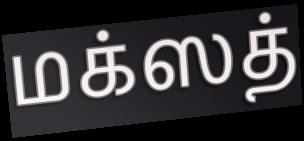
மக்ஸத்